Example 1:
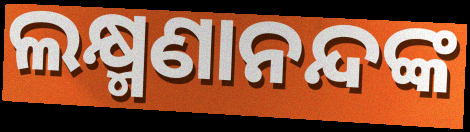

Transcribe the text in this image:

ଲକ୍ଷ୍ମଣାନନ୍ଦଙ୍କ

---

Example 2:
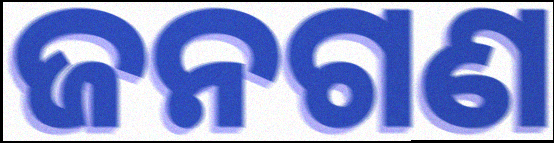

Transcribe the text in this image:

ଜନଗଣ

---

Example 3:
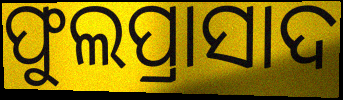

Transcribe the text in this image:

ଫୁଲପ୍ରାସାଦ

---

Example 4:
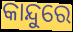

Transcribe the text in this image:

କାନ୍ଦୁରେ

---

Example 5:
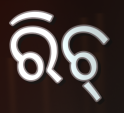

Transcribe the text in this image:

ରିଚ୍